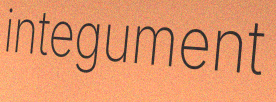
integument